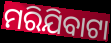
ମରିଯିବାଟା